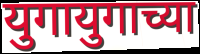
युगायुगाच्या